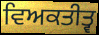
ਵਿਅਕਤੀਤ੍ਵ